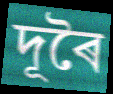
দূৰৈ